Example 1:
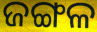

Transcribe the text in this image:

ଜଙ୍ଗଳ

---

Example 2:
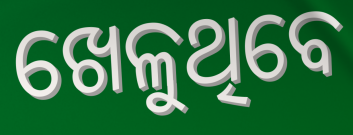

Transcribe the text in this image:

ଖେଳୁଥିବେ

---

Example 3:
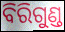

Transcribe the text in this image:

ବିରିଗୁଣ୍ଡ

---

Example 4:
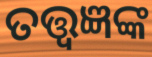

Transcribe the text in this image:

ତତ୍ତ୍ଵଜ୍ଞଙ୍କ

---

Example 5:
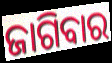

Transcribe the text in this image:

ଜାଗିବାର